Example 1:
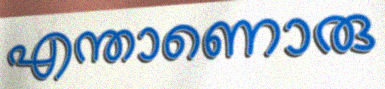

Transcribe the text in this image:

എന്താണൊരു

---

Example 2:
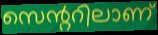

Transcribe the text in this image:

സെന്ററിലാണ്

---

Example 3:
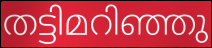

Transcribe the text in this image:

തട്ടിമറിഞ്ഞു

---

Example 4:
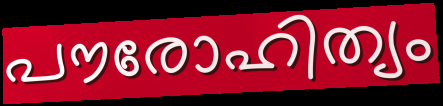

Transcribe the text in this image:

പൗരോഹിത്യം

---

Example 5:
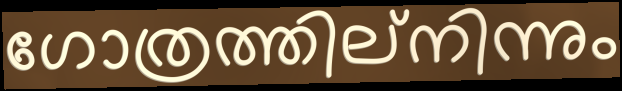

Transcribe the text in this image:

ഗോത്രത്തില്നിന്നും